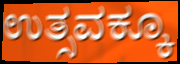
ಉತ್ಸವಕ್ಕೂ